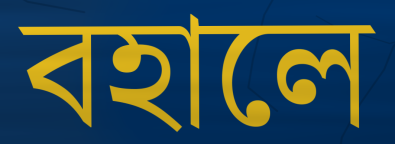
বহালে